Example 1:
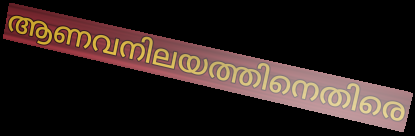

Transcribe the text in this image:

ആണവനിലയത്തിനെതിരെ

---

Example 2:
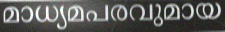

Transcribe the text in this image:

മാധ്യമപരവുമായ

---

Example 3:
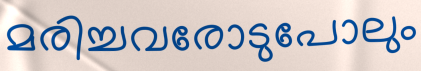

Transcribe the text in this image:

മരിച്ചവരോടുപോലും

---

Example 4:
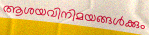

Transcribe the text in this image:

ആശയവിനിമയങ്ങൾക്കും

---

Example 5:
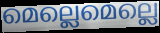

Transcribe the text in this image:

മെല്ലെമെല്ലെ